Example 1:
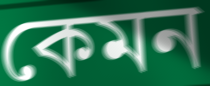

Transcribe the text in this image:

কেমন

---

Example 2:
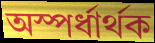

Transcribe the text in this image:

অস্পৰ্ধাৰ্থক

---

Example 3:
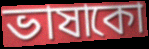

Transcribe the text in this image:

ভাষাকো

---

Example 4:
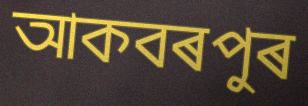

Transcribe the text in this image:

আকবৰপুৰ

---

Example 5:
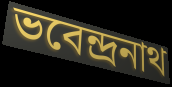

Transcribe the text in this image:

ভবেন্দ্ৰনাথ